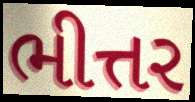
ભીત્તર